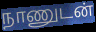
நாணுடன்